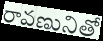
రావణునితో